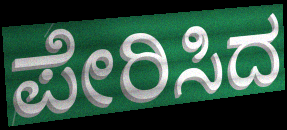
ಪೇರಿಸಿದ